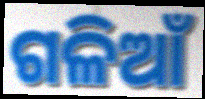
ଗଳିଆଁ